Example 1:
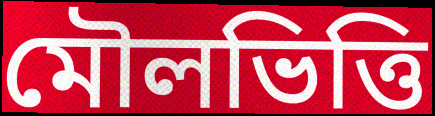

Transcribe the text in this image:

মৌলভিত্তি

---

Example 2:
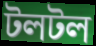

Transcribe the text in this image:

টলটল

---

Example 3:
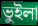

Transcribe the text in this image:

ভুইলা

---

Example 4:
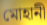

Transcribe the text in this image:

মোহানী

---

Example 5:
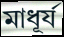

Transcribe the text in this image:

মাধূর্য